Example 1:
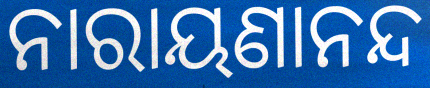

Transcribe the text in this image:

ନାରାୟଣାନନ୍ଦ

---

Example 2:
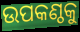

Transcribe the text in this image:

ଉପକଣ୍ଠକୁ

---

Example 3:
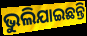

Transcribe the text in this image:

ଭୁଲିଯାଇଛନ୍ତି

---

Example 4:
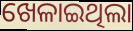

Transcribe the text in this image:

ଖେଳାଇଥିଲା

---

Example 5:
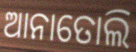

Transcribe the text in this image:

ଆନାତୋଲି